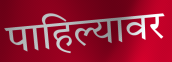
पाहिल्‍यावर